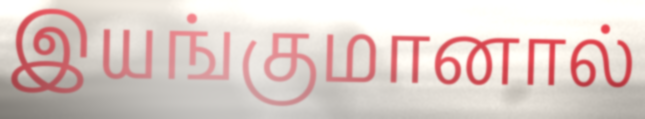
இயங்குமானால்